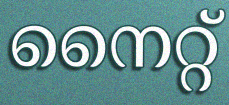
നൈറ്റ്